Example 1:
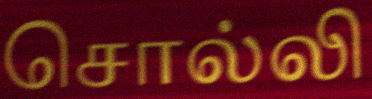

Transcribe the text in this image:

சொல்லி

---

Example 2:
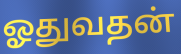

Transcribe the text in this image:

ஓதுவதன்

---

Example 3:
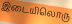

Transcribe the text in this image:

இடையிலொரு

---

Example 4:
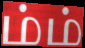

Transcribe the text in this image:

ம்ம்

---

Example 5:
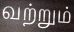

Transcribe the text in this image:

வற்றும்